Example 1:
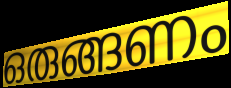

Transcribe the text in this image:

ഒരുങ്ങണം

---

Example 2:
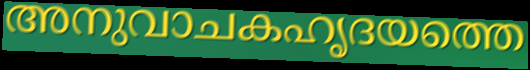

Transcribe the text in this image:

അനുവാചകഹൃദയത്തെ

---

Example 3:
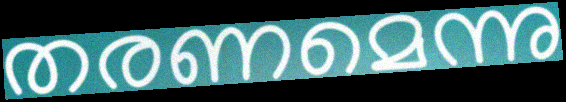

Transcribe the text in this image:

തരണമെന്നു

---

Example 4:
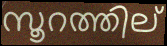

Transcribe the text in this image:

സൂറത്തില്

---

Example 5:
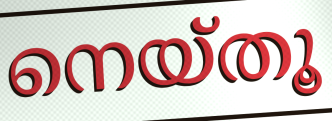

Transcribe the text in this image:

നെയ്തൂ